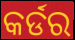
କର୍ଡର